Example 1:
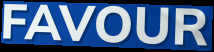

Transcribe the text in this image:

FAVOUR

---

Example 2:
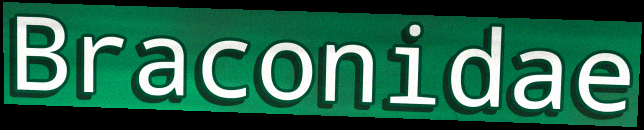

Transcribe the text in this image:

Braconidae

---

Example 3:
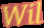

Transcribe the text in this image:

Wil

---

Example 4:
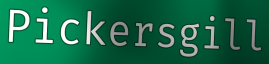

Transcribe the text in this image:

Pickersgill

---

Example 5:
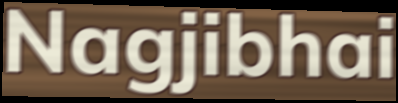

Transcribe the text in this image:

Nagjibhai